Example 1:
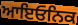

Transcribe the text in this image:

ਆਇਓਨਿਕ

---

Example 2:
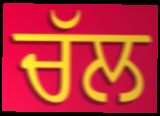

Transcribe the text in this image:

ਚੱਲ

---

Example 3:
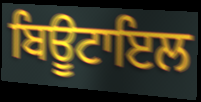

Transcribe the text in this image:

ਬਿਊਟਾਇਲ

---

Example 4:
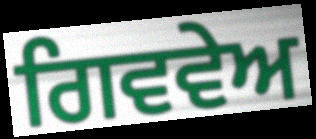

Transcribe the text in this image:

ਗਿਵਵੇਅ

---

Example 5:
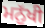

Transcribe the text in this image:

ਮਨੁੱਖੀ